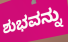
ಶುಭವನ್ನು